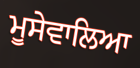
ਮੂਸੇਵਾਲਿਆ